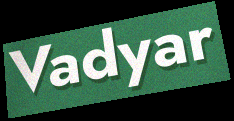
Vadyar